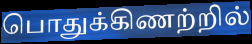
பொதுக்கிணற்றில்